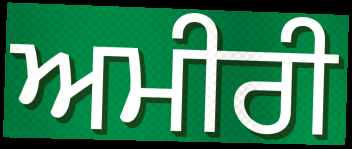
ਅਮੀਰੀ